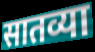
सातव्या